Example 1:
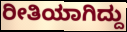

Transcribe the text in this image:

ರೀತಿಯಾಗಿದ್ದು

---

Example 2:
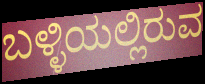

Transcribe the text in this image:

ಬಳ್ಳಿಯಲ್ಲಿರುವ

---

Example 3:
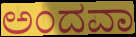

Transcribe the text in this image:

ಅಂದವಾ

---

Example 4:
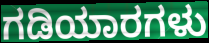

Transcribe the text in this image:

ಗಡಿಯಾರಗಳು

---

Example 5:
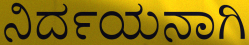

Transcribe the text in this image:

ನಿರ್ದಯನಾಗಿ